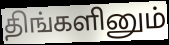
திங்களினும்